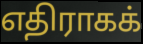
எதிராகக்